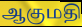
ஆகுமதி